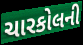
ચારકોલની